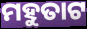
ମହୁତାଟ